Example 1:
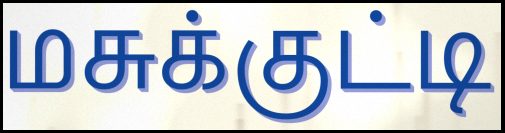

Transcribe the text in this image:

மசுக்குட்டி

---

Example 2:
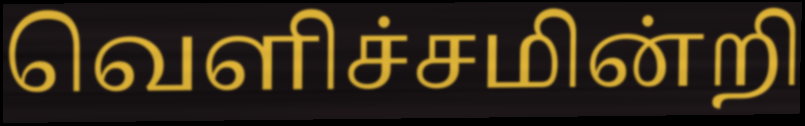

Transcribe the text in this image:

வெளிச்சமின்றி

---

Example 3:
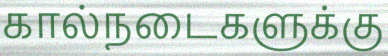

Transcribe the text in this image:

கால்நடைகளுக்கு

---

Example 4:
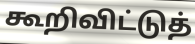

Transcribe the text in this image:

கூறிவிட்டுத்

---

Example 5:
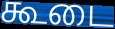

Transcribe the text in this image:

கூடை